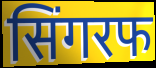
सिंगरफ